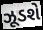
ઝૂડશે